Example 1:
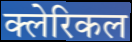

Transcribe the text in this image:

क्लेरिकल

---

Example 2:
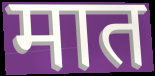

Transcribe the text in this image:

मात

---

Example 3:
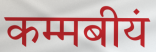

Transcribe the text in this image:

कम्मबीयं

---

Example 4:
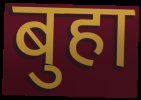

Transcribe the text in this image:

बुहा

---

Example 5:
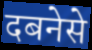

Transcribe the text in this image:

दबनेसे